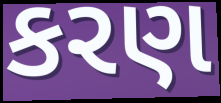
કરણ